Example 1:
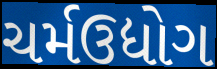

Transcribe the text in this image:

ચર્મઉદ્યોગ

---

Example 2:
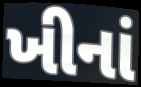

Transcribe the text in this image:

ખીનાં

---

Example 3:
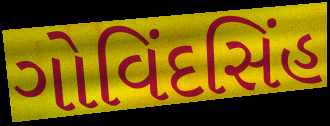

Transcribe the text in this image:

ગોવિંદસિંહ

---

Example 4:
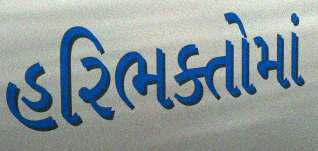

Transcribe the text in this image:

હરિભક્તોમાં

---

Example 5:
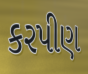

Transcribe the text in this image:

કરપીણ